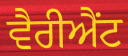
ਵੈਰੀਐਂਟ